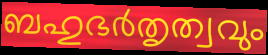
ബഹുഭർതൃത്വവും